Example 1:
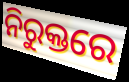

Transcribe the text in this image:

ନିରୁକ୍ତରେ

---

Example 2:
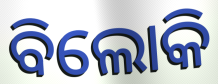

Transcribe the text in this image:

ବିଲୋକି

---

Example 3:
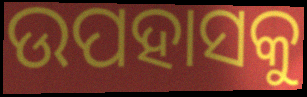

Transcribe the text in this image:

ଉପହାସକୁ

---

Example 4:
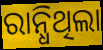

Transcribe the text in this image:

ରାନ୍ଧିଥିଲା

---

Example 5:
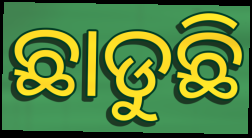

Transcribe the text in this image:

ଛାଡୁଛି